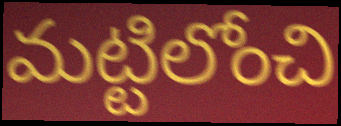
మట్టిలోంచి